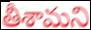
తీశామని